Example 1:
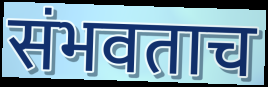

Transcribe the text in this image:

संभवताच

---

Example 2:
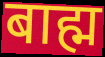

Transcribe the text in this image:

बाह्म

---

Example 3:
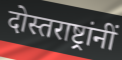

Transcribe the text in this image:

दोस्तराष्ट्रांनीं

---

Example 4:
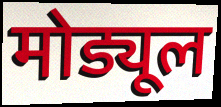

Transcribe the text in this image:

मोड्यूल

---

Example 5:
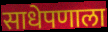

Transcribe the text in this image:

साधेपणाला